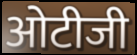
ओटीजी